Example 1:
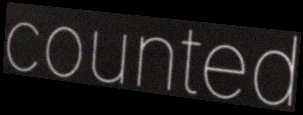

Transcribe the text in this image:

counted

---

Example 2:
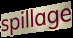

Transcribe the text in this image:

spillage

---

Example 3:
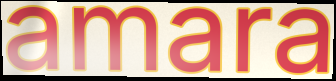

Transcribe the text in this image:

amara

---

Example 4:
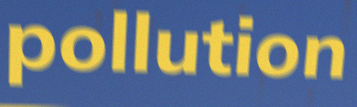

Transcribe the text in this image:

pollution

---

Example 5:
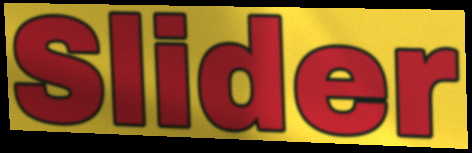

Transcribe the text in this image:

Slider